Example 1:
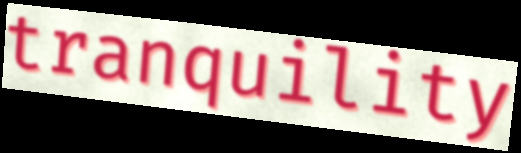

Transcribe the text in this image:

tranquility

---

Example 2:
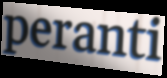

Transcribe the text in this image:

peranti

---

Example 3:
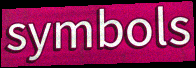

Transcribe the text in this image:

symbols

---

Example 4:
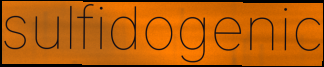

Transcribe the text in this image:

sulfidogenic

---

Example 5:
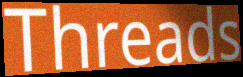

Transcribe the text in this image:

Threads